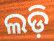
ଲଡ଼ି